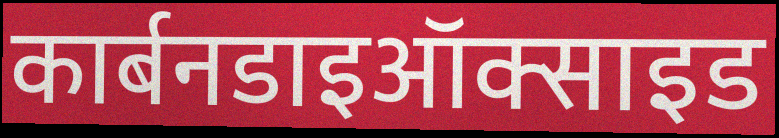
कार्बनडाइऑक्साइड